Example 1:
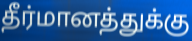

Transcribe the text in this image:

தீர்மானத்துக்கு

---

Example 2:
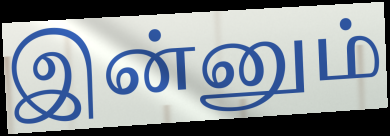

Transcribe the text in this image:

இன்னும்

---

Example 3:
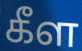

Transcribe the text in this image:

கீள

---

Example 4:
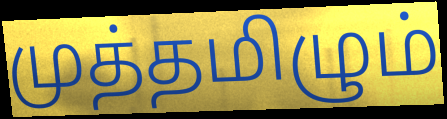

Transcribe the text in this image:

முத்தமிழும்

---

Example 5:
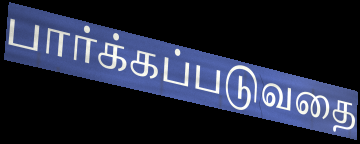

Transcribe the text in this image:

பார்க்கப்படுவதை